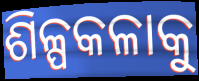
ଶିଳ୍ପକଳାକୁ